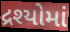
દ્રશ્યોમાં